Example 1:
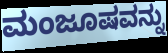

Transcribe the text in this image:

ಮಂಜೂಷವನ್ನು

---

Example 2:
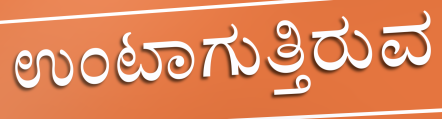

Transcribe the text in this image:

ಉಂಟಾಗುತ್ತಿರುವ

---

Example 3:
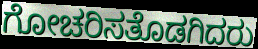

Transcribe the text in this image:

ಗೋಚರಿಸತೊಡಗಿದರು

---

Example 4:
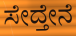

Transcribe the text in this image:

ಸೇದ್ತೇನೆ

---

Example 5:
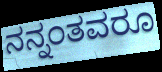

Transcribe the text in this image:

ನನ್ನಂತವರೂ